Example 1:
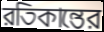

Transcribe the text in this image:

রতিকান্তের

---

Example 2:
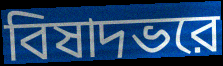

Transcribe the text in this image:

বিষাদভরে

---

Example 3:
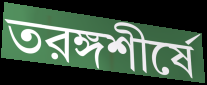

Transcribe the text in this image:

তরঙ্গশীর্ষে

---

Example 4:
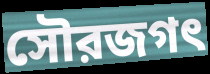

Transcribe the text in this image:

সৌরজগৎ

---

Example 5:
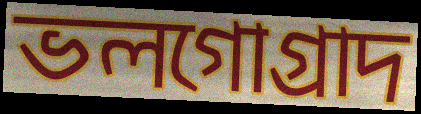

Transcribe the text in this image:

ভলগোগ্রাদ